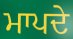
ਮਾਪਦੇ